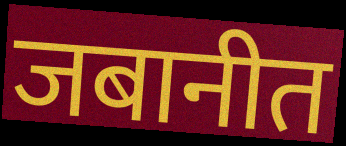
जबानीत